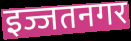
इज्जतनगर